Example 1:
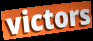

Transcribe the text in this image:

victors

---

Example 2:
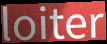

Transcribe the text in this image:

loiter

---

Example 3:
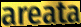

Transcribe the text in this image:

areata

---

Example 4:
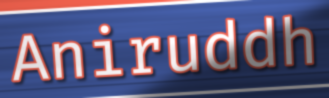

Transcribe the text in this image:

Aniruddh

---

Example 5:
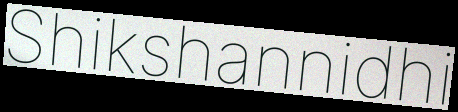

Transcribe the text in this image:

Shikshannidhi